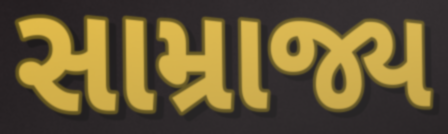
સામ્રાજ્ય